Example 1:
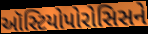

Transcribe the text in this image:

ઑસ્ટિયોપોરોસિસને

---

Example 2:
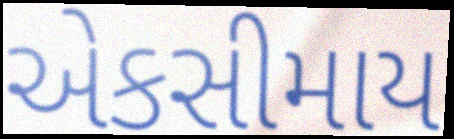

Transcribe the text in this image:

એકસીમાય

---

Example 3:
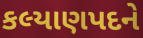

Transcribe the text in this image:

કલ્યાણપદને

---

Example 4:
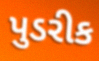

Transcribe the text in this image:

પુડરીક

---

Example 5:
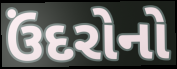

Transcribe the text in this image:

ઉંદરોનો